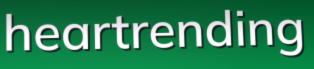
heartrending